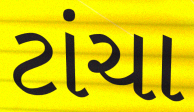
ટાંચા